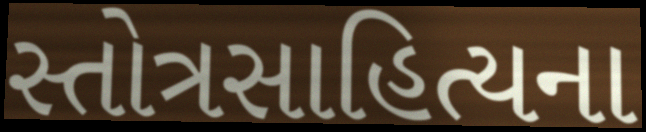
સ્તોત્રસાહિત્યના